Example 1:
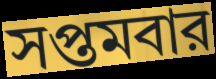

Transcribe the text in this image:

সপ্তমবার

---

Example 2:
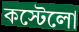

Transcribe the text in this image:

কস্টেলো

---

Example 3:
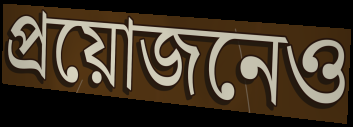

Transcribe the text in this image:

প্রয়োজনেও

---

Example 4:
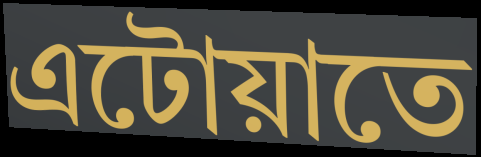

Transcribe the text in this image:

এটোয়াতে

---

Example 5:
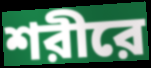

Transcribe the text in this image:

শরীরে